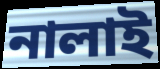
নালাই